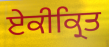
ਏਕੀਕ੍ਰਿਤ